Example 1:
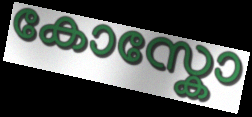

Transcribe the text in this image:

കോസ്കോ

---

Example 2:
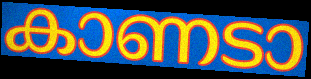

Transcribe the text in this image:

കാണടാ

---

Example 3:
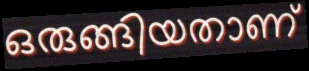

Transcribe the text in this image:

ഒരുങ്ങിയതാണ്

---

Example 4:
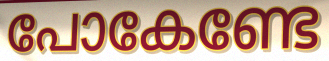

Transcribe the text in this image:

പോകേണ്ടേ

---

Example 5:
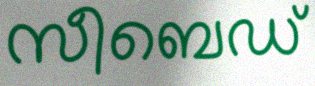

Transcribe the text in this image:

സീബെഡ്